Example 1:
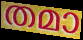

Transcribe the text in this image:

തമാ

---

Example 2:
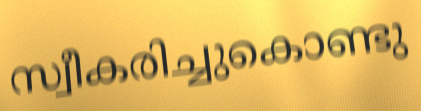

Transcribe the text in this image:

സ്വീകരിച്ചുകൊണ്ടു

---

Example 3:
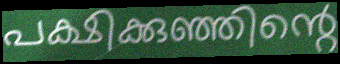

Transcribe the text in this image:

പക്ഷിക്കുഞ്ഞിന്റെ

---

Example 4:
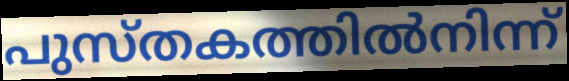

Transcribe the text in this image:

പുസ്തകത്തിൽനിന്ന്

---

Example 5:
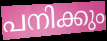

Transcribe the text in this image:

പനിക്കും